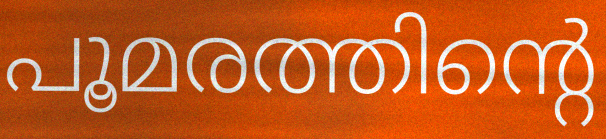
പൂമരത്തിന്റെ